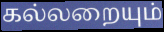
கல்லறையும்